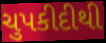
ચુપકીદીથી